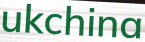
ukchina